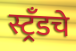
स्ट्रँडचे